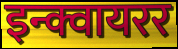
इन्क्वायरर